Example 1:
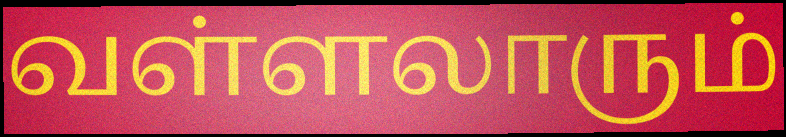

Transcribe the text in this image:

வள்ளலாரும்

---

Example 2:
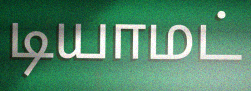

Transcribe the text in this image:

டியாமட்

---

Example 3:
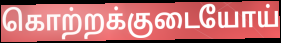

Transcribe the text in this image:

கொற்றக்குடையோய்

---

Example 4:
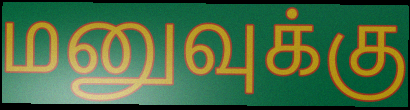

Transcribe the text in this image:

மனுவுக்கு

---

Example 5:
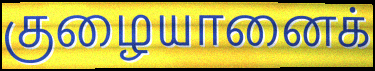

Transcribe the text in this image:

குழையானைக்